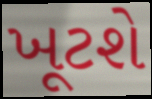
ખૂટશે